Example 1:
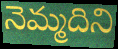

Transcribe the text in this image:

నెమ్మదిని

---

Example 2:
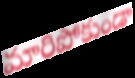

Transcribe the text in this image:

మారిపోకుండా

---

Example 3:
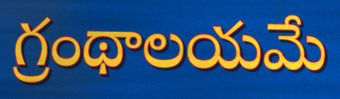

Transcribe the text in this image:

గ్రంథాలయమే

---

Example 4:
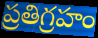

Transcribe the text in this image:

ప్రతిగ్రహం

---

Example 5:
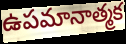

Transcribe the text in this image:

ఉపమానాత్మక